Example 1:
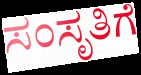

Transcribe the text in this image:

ಸಂಸೃತಿಗೆ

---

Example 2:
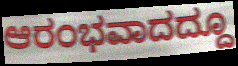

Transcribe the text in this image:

ಆರಂಭವಾದದ್ದೂ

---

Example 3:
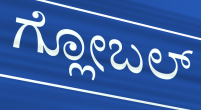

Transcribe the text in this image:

ಗ್ಲೋಬಲ್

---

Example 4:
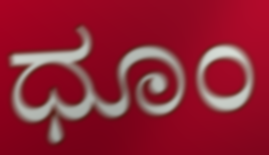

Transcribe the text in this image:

ಧೂಂ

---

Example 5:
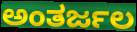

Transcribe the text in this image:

ಅಂತರ್ಜಲ